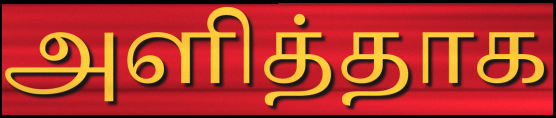
அளித்தாக